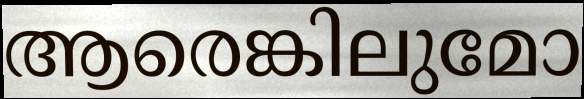
ആരെങ്കിലുമോ